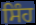
ਸਿੰਹ